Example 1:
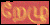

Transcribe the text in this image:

றேழு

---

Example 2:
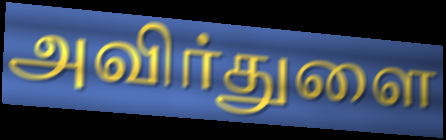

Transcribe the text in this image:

அவிர்துளை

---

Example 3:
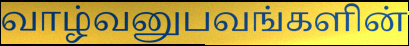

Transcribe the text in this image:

வாழ்வனுபவங்களின்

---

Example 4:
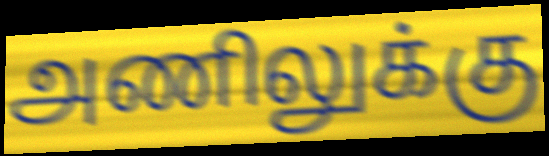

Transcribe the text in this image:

அணிலுக்கு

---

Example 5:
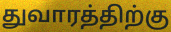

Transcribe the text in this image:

துவாரத்திற்கு